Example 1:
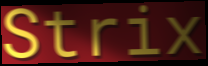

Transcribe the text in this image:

Strix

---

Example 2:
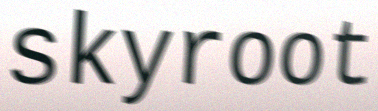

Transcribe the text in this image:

skyroot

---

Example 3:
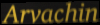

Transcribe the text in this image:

Arvachin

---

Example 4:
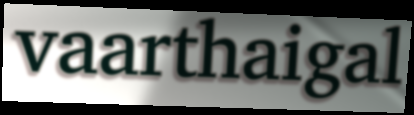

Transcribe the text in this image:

vaarthaigal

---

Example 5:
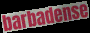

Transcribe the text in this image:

barbadense